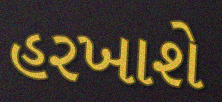
હરખાશે